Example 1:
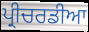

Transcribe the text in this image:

ਪ੍ਰੀਚਰਡੀਆ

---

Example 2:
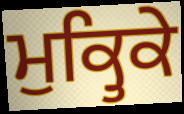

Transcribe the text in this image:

ਮੁਕ੍ਤਿਕੇ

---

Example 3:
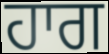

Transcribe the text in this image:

ਹਾਗ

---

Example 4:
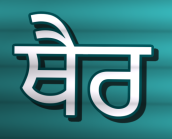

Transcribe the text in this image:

ਥੈਰ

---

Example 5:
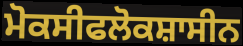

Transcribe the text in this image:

ਮੋਕਸੀਫਲੋਕਸ਼ਾਸੀਨ